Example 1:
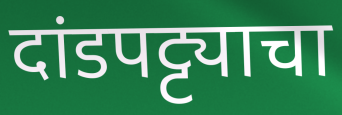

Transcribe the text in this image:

दांडपट्ट्याचा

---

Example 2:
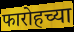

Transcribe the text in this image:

फारोहच्या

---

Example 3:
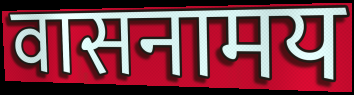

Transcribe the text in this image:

वासनामय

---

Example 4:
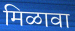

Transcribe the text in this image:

मिळावा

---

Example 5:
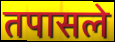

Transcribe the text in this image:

तपासले